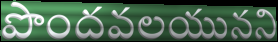
పొందవలయునని